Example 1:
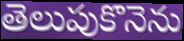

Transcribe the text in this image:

తెలుపుకొనెను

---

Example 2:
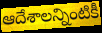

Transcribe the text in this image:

ఆదేశాలన్నింటికీ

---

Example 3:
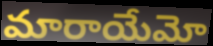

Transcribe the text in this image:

మారాయేమో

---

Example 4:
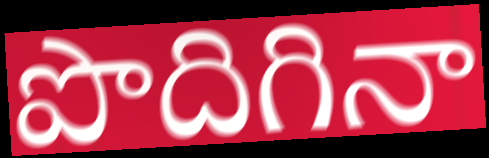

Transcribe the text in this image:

పొదిగినా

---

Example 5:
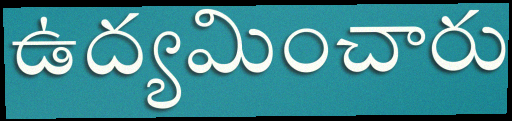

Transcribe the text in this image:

ఉద్యమించారు